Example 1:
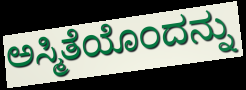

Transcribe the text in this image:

ಅಸ್ಮಿತೆಯೊಂದನ್ನು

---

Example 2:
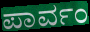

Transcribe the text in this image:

ಪಾರ್ವಂ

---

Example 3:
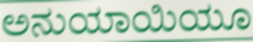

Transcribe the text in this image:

ಅನುಯಾಯಿಯೂ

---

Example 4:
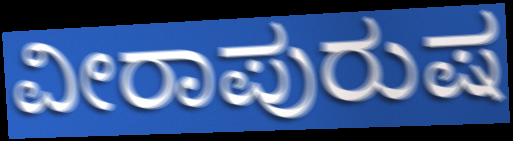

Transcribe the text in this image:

ವೀರಾಪುರುಷ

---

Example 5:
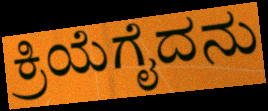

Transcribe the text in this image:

ಕ್ರಿಯೆಗೈದನು